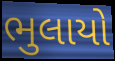
ભુલાયો